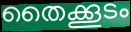
തൈക്കൂടം